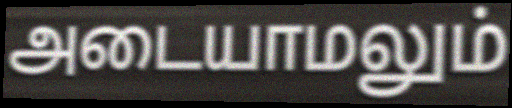
அடையாமலும்